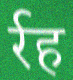
र्रह